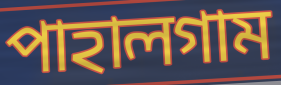
পাহালগাম